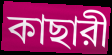
কাছারী